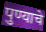
पुण्याचे